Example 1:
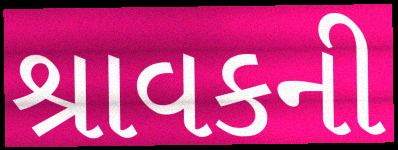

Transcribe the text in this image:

શ્રાવકની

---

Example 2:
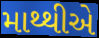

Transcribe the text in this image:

માથ્થીએ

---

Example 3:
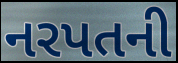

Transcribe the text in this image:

નરપતની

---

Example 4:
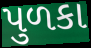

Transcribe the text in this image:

પુળકા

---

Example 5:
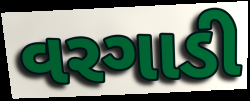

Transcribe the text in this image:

વરગાડી